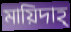
মায়িদাহ্